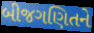
બીજગણિતને